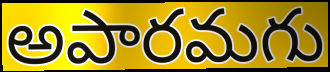
అపారమగు